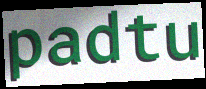
padtu